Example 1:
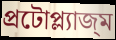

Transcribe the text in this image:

প্রটোপ্ল্যাজ্ম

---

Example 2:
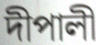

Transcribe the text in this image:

দীপালী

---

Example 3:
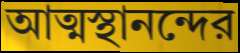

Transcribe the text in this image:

আত্মস্থানন্দের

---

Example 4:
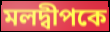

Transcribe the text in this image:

মলদ্বীপকে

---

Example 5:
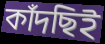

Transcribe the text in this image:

কাঁদছিই